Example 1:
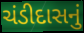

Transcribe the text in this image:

ચંડીદાસનું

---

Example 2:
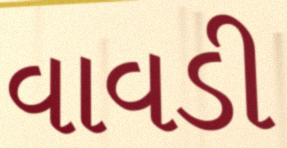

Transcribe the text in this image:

વાવડી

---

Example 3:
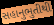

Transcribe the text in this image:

સહાનુભુતીથી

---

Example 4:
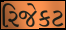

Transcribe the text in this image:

રિજેકટ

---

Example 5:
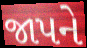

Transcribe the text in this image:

જાપને